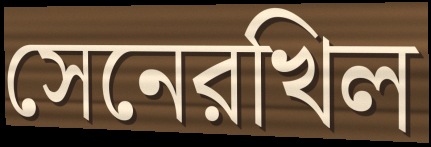
সেনেরখিল